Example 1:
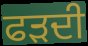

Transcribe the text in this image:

ਫੜਦੀ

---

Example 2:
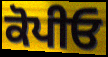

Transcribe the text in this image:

ਕੋਪੀਓ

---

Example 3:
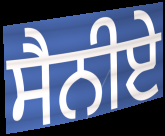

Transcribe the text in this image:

ਸੈਨੀਏ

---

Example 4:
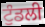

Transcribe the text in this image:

ਟੁੰਡਲੀ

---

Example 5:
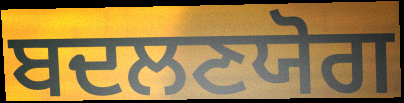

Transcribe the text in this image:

ਬਦਲਣਯੋਗ